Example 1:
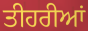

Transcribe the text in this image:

ਤੀਹਰੀਆਂ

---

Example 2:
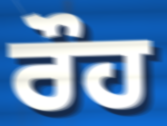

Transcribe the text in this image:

ਰੌਹ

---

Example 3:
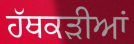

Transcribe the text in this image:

ਹੱਥਕੜੀਆਂ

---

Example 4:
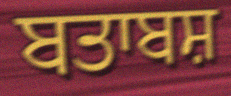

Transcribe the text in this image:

ਬਤਾਬਸ਼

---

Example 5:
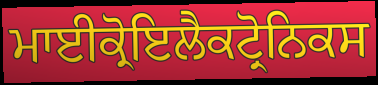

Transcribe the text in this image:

ਮਾਈਕ੍ਰੋਇਲੈਕਟ੍ਰੋਨਿਕਸ